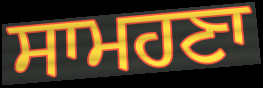
ਸਾਮਹਣਾ